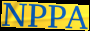
NPPA